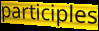
participles